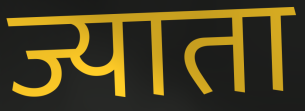
ज्याता